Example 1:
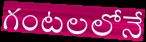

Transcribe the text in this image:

గంటలలోనే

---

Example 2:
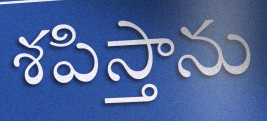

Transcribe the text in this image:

శపిస్తాను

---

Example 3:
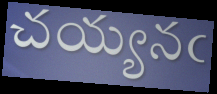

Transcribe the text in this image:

చయ్యనఁ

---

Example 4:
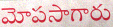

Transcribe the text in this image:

మోపసాగారు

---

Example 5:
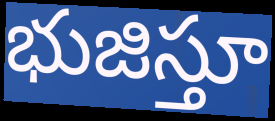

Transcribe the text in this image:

భుజిస్తూ